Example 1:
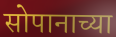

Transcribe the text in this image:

सोपानाच्या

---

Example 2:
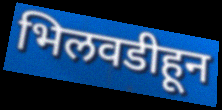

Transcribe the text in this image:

भिलवडीहून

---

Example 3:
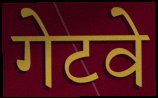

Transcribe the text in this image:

गेटवे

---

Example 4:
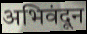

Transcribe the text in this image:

अभिवंदून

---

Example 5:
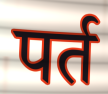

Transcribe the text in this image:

पर्त